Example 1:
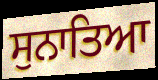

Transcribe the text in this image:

ਸੁਨਾਤਿਆ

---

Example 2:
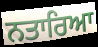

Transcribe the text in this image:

ਨਤਾਰਿਆ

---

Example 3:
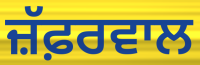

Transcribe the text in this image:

ਜ਼ੱਫ਼ਰਵਾਲ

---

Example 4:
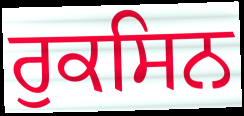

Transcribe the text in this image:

ਰੁਕਸਿਨ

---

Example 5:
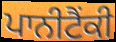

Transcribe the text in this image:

ਪਾਨੀਟੈਂਕੀ